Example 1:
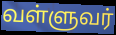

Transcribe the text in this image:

வள்ளுவர்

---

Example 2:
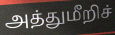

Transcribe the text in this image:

அத்துமீறிச்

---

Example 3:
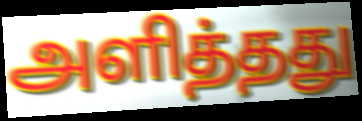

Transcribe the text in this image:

அளித்தது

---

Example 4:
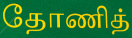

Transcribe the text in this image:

தோணித்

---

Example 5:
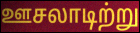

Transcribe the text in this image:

ஊசலாடிற்று